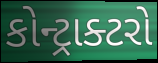
કોન્ટ્રાક્ટરો